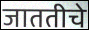
जाततीचे